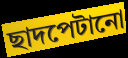
ছাদপেটানো